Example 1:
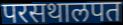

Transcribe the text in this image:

परसथालपत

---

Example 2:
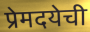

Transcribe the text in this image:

प्रेमदयेची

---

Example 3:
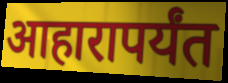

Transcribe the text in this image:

आहारापर्यंत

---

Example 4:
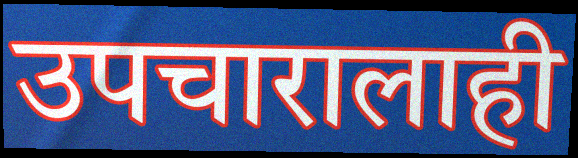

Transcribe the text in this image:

उपचारालाही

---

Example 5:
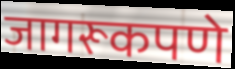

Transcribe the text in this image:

जागरूकपणे